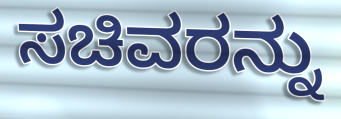
ಸಚಿವರನ್ನು